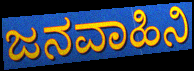
ಜನವಾಹಿನಿ